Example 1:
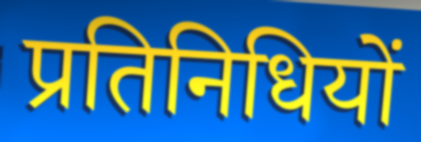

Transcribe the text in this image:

प्रतिनिधियों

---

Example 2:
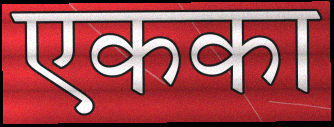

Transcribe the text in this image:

एकका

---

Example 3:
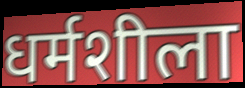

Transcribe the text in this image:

धर्मशीला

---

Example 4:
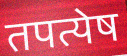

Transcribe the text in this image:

तपत्येष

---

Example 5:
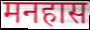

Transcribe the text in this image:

मनहास